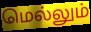
மெல்லும்